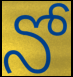
నో